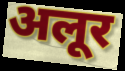
अलूर